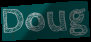
Doug